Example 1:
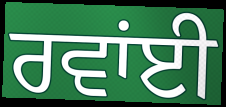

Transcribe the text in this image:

ਰਵਾਂਈ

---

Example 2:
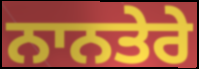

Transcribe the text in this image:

ਨਾਨਤੇਰੇ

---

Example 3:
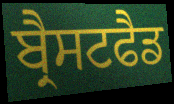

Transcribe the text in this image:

ਬ੍ਰੈਸਟਫੈਡ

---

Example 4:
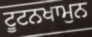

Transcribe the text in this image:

ਟੂਟਨਖਾਮੁਨ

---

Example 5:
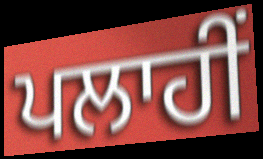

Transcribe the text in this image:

ਪਲਾਹੀਂ